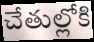
చేతుల్లోకి